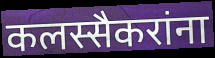
कलस्सैकरांना